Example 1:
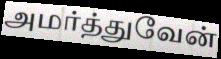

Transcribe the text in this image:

அமர்த்துவேன்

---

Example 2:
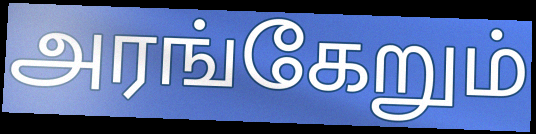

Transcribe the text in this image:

அரங்கேறும்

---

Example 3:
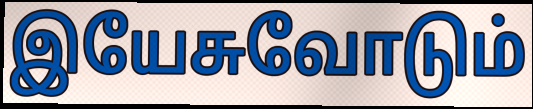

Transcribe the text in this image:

இயேசுவோடும்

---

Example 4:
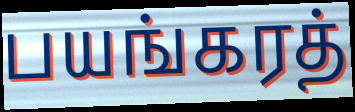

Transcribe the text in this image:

பயங்கரத்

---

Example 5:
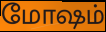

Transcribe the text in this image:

மோஷம்